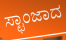
ಸ್ಟಾಂಜಾದ